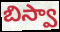
బిస్వా